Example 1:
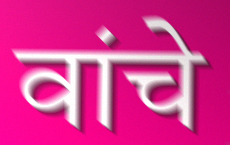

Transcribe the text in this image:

वांचे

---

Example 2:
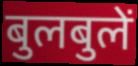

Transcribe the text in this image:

बुलबुलें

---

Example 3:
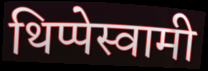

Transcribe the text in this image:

थिप्पेस्वामी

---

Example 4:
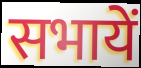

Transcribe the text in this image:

सभायें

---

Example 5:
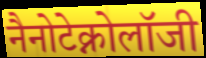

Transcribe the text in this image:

नैनोटेक्नोलॉजी